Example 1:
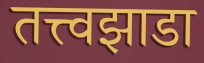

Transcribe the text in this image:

तत्त्वझाडा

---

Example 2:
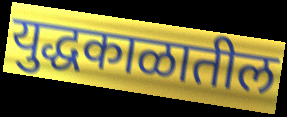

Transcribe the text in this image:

युद्धकाळातील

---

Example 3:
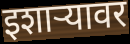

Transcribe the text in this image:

इशार्‍यावर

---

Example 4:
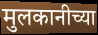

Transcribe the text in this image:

मुलकानीच्या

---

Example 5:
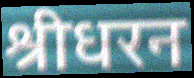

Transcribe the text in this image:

श्रीधरन